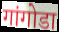
गांगोडा